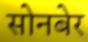
सोनबेर